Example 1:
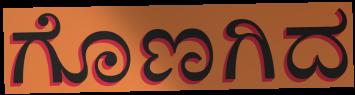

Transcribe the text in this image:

ಗೊಣಗಿದ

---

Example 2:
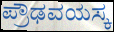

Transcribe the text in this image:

ಪ್ರೌಢವಯಸ್ಕ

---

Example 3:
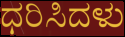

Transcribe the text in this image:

ಧರಿಸಿದಳು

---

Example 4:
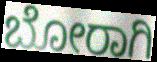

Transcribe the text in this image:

ಬೋರಾಗಿ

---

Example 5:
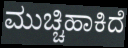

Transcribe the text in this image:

ಮುಚ್ಚಿಹಾಕಿದೆ